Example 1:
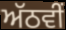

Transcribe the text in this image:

ਅੱਠਵੀੰ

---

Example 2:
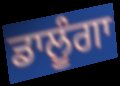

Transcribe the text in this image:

ਡਾਲੂੰਗਾ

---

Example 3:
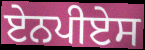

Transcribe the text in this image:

ਏਨਪੀਏਸ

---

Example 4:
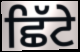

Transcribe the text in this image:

ਛਿੱਟੇ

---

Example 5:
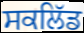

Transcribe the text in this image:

ਸਕਲਿੱਡ